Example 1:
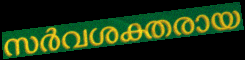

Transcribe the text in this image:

സർവശക്തരായ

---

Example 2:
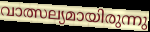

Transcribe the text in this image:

വാത്സല്യമായിരുന്നു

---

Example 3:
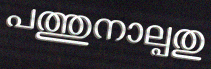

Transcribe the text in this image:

പത്തുനാല്പതു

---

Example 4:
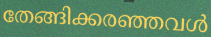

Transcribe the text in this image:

തേങ്ങിക്കരഞ്ഞവൾ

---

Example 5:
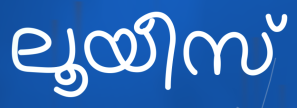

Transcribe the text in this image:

ലൂയീസ്